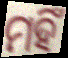
ମହିଁ